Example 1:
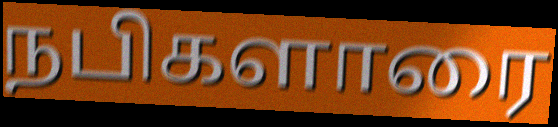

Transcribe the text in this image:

நபிகளாரை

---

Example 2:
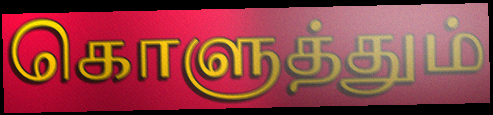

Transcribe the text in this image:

கொளுத்தும்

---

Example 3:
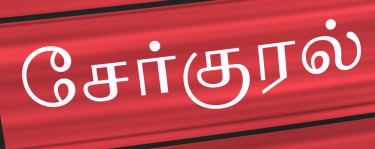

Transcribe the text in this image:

சேர்குரல்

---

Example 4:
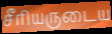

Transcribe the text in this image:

சீரியருடைய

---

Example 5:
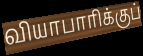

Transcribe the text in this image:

வியாபாரிக்குப்